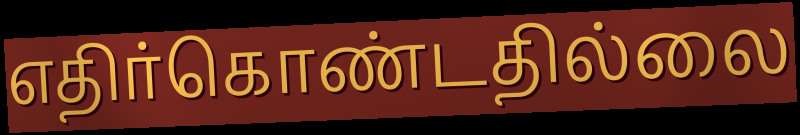
எதிர்கொண்டதில்லை